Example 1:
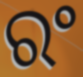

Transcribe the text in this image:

ରଂ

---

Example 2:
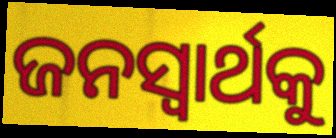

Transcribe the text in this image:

ଜନସ୍ବାର୍ଥକୁ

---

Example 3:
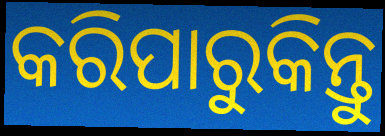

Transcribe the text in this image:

କରିପାରୁକିନ୍ତୁ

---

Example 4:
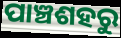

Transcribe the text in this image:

ପାଞ୍ଚଶହରୁ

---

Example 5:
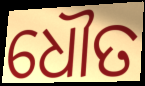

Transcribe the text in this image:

ଧୌତ